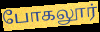
போகலூர்